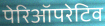
पेरिऑपरेटिव